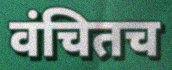
वंचितच